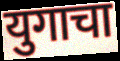
युगाचा